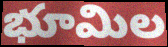
భూమిల